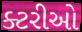
ક્ટરીઓ